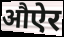
औऐर